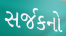
સર્જકનો